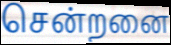
சென்றனை